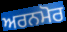
ਅਰਨਮੋਰ